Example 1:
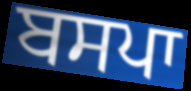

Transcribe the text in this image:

ਬਸਪਾ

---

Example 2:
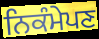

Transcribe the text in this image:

ਨਿਕੰਮੇਪਣ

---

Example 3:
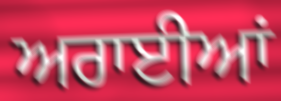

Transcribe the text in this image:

ਅਰਾਈਆਂ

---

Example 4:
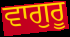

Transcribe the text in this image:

ਵਾਗੁਰੂ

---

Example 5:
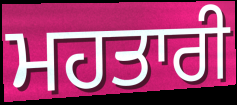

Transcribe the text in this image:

ਮਹਤਾਰੀ